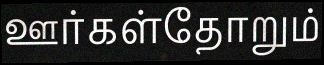
ஊர்கள்தோறும்